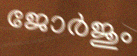
ജോർജും